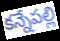
కన్నేపల్లి